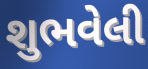
શુભવેલી